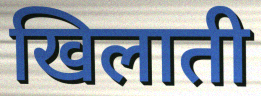
खिलाती